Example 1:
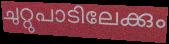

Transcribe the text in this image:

ചുറ്റുപാടിലേക്കും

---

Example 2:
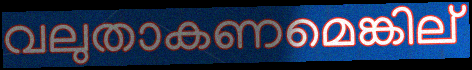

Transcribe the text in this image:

വലുതാകണമെങ്കില്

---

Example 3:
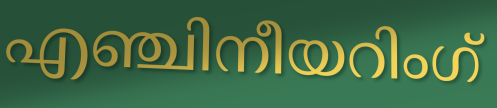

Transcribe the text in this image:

എഞ്ചിനീയറിംഗ്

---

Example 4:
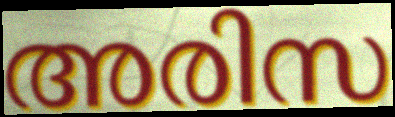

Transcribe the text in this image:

അരിസ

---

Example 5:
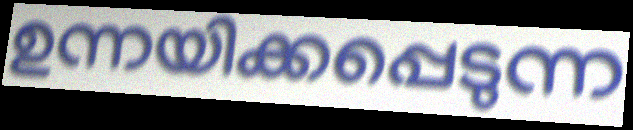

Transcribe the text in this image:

ഉന്നയിക്കപ്പെടുന്ന